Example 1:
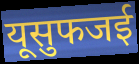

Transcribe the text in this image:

यूसुफजई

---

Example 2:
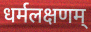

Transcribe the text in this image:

धर्मलक्षणम्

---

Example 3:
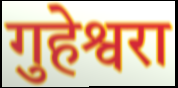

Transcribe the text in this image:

गुहेश्वरा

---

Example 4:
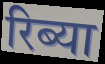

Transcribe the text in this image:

रिब्या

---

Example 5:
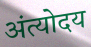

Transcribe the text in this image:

अंत्योदय